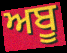
ਅਬੂ